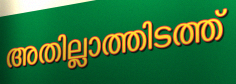
അതില്ലാത്തിടത്ത്